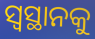
ସ୍ୱସ୍ଥାନକୁ